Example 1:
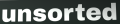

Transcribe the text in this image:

unsorted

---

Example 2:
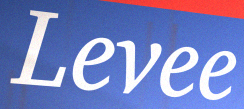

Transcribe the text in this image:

Levee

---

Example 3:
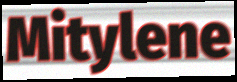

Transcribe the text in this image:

Mitylene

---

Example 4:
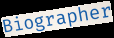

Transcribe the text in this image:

Biographer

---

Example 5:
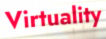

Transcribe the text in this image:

Virtuality